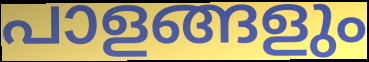
പാളങ്ങളും